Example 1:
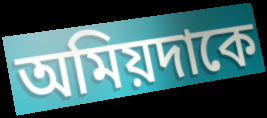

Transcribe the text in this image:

অমিয়দাকে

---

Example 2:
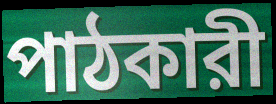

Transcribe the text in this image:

পাঠকারী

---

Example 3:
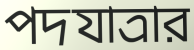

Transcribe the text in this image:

পদযাত্রার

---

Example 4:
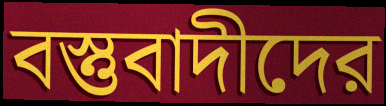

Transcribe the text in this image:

বস্তুবাদীদের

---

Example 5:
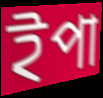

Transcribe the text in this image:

ইপা